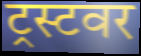
ट्रस्टवर